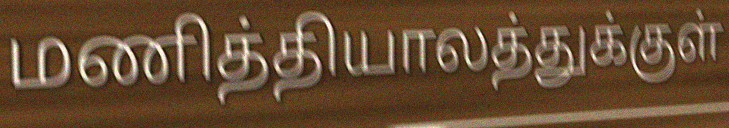
மணித்தியாலத்துக்குள்